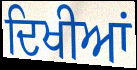
ਦਿਖੀਆਂ